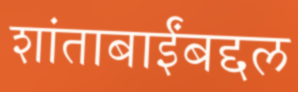
शांताबाईंबद्दल